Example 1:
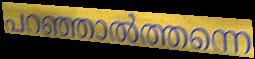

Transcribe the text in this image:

പറഞ്ഞാൽത്തന്നെ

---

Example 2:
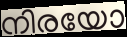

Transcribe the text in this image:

നിരയോ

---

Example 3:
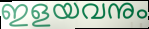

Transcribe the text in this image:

ഇളയവനും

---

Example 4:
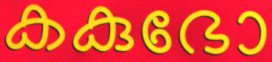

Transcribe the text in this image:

കകുഭോ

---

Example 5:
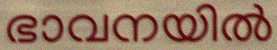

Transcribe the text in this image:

ഭാവനയിൽ